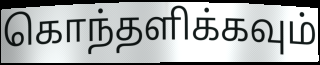
கொந்தளிக்கவும்